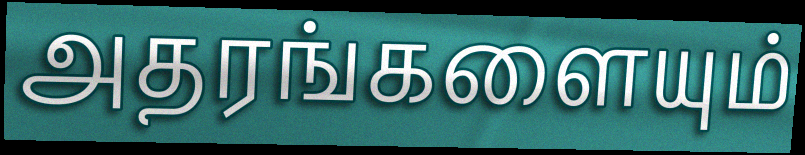
அதரங்களையும்